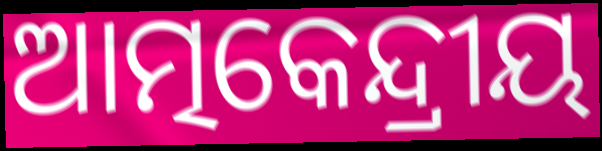
ଆତ୍ମକେନ୍ଦ୍ରୀୟ